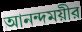
আনন্দময়ীর